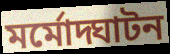
মর্মোদ্ঘাটন